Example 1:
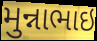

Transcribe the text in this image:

મુન્નાભાઇ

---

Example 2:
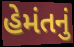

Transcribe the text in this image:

હેમંતનું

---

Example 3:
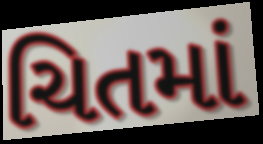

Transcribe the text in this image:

ચિતમાં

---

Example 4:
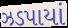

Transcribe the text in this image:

ઝડપાયાં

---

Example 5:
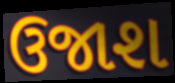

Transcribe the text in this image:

ઉજાશ